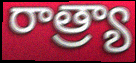
రాత్ర్యా